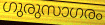
ഗുരുസാഗരം